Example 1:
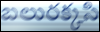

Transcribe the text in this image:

బలురక్కసి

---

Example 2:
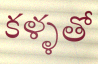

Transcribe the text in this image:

కళ్ళతో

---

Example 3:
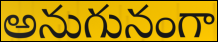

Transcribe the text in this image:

అనుగునంగా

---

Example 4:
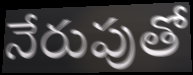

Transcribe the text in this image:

నేరుపుతో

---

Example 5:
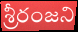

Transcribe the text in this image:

శ్రీరంజని